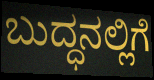
ಬುದ್ಧನಲ್ಲಿಗೆ